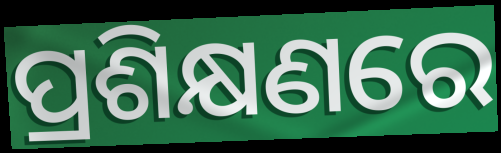
ପ୍ରଶିକ୍ଷଣରେ